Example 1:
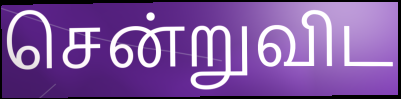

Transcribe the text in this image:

சென்றுவிட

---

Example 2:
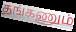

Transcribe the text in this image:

தங்கணும்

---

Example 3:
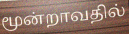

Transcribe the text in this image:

மூன்றாவதில்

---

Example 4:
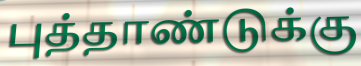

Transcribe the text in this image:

புத்தாண்டுக்கு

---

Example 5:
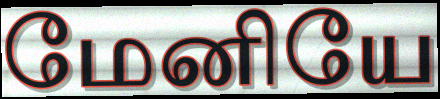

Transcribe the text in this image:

மேனியே